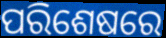
ପରିଶେଷରେ